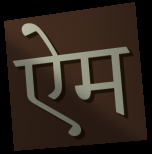
ऐम